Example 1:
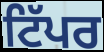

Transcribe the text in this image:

ਟਿੱਪਰ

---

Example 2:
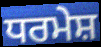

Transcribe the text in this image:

ਧਰਮੇਸ਼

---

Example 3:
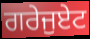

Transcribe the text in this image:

ਗਰੇਜੁਏਟ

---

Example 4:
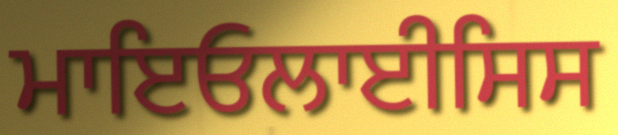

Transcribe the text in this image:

ਮਾਇਓਲਾਈਸਿਸ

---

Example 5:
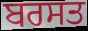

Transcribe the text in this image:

ਬਰਸਤ